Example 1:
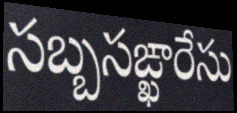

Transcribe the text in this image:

సబ్బసఙ్ఖారేసు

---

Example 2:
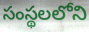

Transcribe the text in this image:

సంస్థలలోని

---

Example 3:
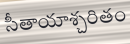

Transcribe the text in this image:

సీతాయాశ్చరితం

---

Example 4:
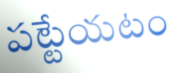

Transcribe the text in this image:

పట్టేయటం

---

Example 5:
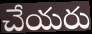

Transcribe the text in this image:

చేయరు